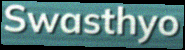
Swasthyo